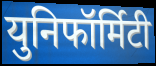
युनिफॉर्मिटी